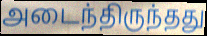
அடைந்திருந்தது